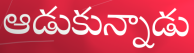
ఆడుకున్నాడు